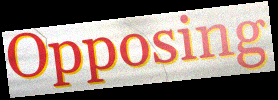
Opposing